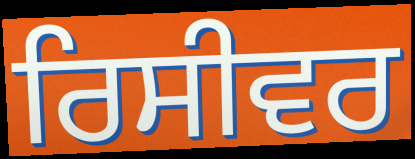
ਰਿਸੀਵਰ